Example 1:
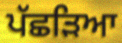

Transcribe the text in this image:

ਪੱਛੜਿਆ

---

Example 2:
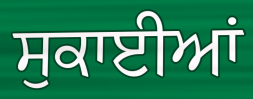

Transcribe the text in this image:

ਸੁਕਾਈਆਂ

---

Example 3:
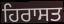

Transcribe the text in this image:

ਹਿਰਾਸਤ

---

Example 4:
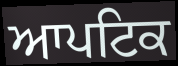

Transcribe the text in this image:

ਆਪਟਿਕ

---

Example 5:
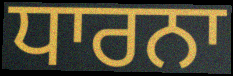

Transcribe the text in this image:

ਧਾਰਨਾ